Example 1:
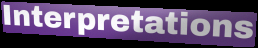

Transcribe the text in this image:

Interpretations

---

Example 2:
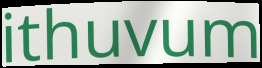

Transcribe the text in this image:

ithuvum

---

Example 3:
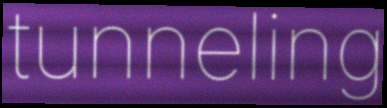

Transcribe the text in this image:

tunneling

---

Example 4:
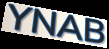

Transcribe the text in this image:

YNAB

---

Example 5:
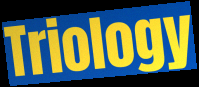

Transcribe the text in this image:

Triology